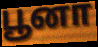
பூனா